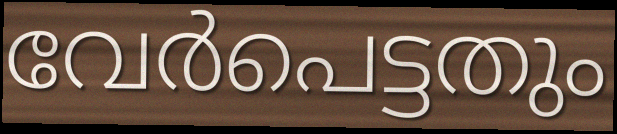
വേർപെട്ടതും